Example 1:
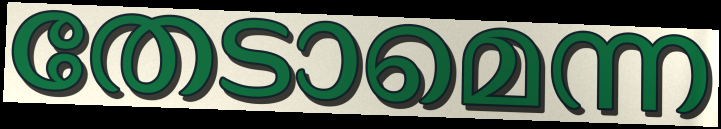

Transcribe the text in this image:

തേടാമെന്ന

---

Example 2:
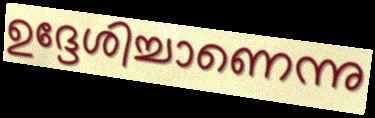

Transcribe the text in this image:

ഉദ്ദേശിച്ചാണെന്നു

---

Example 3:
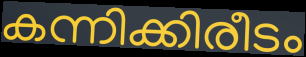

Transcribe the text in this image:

കന്നിക്കിരീടം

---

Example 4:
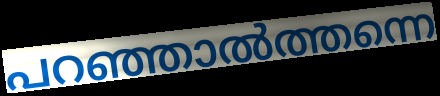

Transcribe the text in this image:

പറഞ്ഞാൽത്തന്നെ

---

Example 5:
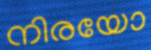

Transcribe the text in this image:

നിരയോ